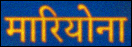
मारियोना